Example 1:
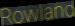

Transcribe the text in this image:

Rowland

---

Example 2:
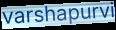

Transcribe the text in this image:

varshapurvi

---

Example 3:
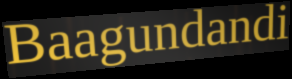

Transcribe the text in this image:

Baagundandi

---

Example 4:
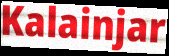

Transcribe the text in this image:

Kalainjar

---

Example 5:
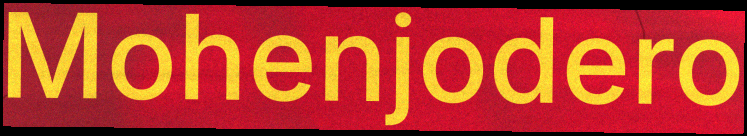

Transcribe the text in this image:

Mohenjodero